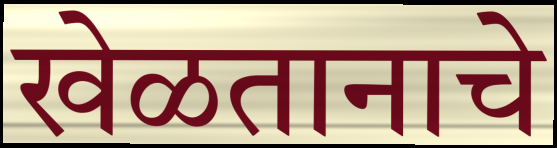
खेळतानाचे